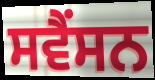
ਸਵੈਂਸਨ